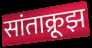
सांताक्रूझ